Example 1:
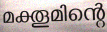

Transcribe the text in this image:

മക്തൂമിന്റെ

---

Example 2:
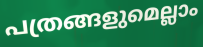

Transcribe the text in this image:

പത്രങ്ങളുമെല്ലാം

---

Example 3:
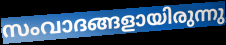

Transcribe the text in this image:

സംവാദങ്ങളായിരുന്നു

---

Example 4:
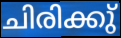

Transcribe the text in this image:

ചിരിക്കു്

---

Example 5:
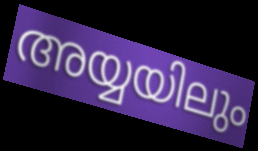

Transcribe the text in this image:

അയ്യയിലും